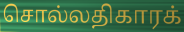
சொல்லதிகாரக்